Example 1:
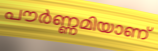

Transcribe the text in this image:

പൗർണ്ണമിയാണ്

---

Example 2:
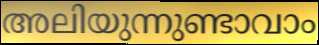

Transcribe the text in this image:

അലിയുന്നുണ്ടാവാം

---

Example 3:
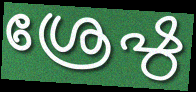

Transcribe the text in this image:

ശ്രേഷ്ഠ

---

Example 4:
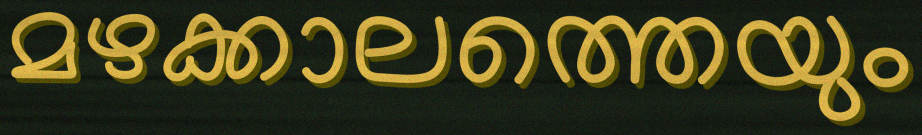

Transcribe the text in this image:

മഴക്കാലത്തെയും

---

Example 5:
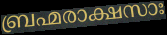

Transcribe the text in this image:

ബ്രഹ്മരാക്ഷസാഃ